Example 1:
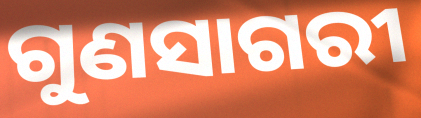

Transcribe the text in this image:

ଗୁଣସାଗରୀ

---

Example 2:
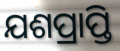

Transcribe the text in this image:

ଯଶପ୍ରାପ୍ତି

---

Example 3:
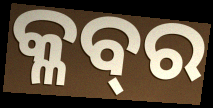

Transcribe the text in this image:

କ୍ଳବ୍‍ର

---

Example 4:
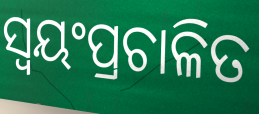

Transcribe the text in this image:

ସ୍ୱୟଂପ୍ରଚାଳିତ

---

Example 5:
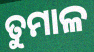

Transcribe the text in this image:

ତୁମାଳ